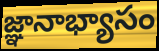
జ్ఞానాభ్యాసం